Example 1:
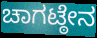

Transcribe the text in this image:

ಚಾಗಟ್ಠೇನ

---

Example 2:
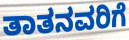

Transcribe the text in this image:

ತಾತನವರಿಗೆ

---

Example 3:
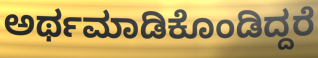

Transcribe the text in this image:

ಅರ್ಥಮಾಡಿಕೊಂಡಿದ್ದರೆ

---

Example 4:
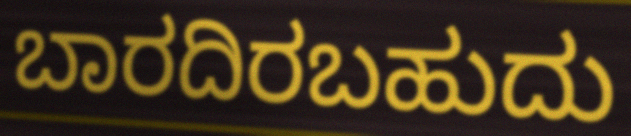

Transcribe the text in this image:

ಬಾರದಿರಬಹುದು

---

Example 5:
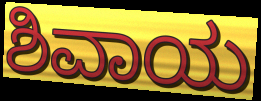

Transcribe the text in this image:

ಶಿವಾಯ